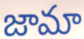
జామా